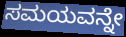
ಸಮಯವನ್ನೇ